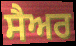
ਸੈਅਰ